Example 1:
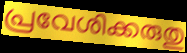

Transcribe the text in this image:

പ്രവേശിക്കരുതു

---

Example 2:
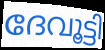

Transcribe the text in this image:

ദേവൂട്ടി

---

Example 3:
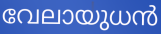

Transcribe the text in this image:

വേലായുധൻ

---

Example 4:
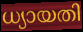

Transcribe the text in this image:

ധ്യായതി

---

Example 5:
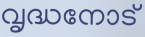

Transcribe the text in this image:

വൃദ്ധനോട്